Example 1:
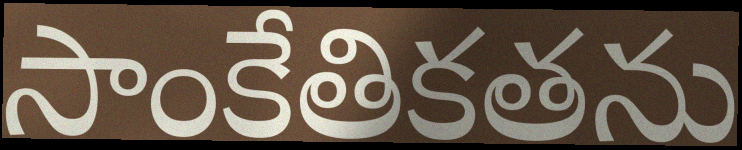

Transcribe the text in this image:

సాంకేతికతను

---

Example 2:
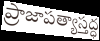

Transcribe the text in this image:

ప్రాజాపత్యాస్తద్ధ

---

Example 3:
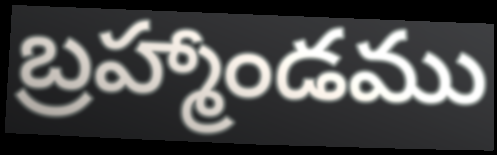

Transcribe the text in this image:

బ్రహ్మాండము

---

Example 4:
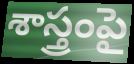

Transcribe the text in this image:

శాస్త్రంపై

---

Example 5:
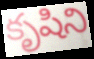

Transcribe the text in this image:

కృషిని